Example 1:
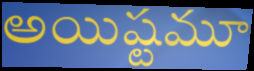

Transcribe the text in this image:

అయిష్టమూ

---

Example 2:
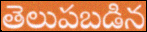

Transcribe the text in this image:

తెలుపబడిన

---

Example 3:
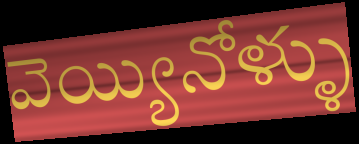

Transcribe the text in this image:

వెయ్యినోళ్ళు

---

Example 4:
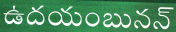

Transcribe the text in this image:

ఉదయంబునన్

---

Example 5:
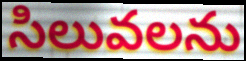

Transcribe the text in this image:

సిలువలను